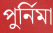
পুর্নিমা